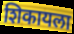
शिकायला